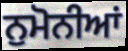
ਨੁਮੋਨੀਆਂ